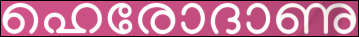
ഹെരോദാണു